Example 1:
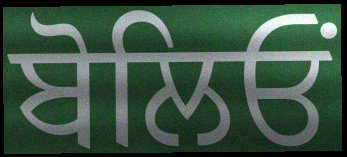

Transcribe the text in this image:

ਬੋਲਿਓਂ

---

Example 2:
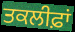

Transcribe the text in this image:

ਤਕਲੀਫ਼ਾਂ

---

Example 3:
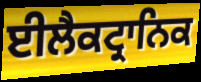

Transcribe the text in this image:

ਈਲੈਕਟ੍ਰਾਨਿਕ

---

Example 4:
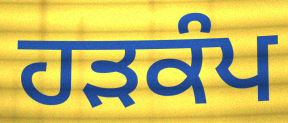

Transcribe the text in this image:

ਹਡ਼ਕੰਪ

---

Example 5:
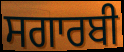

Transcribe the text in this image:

ਸਗਾਰਬੀ